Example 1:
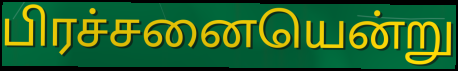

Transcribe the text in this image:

பிரச்சனையென்று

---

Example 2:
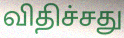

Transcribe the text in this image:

விதிச்சது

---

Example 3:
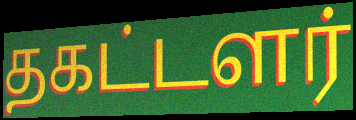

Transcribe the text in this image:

தகட்டளர்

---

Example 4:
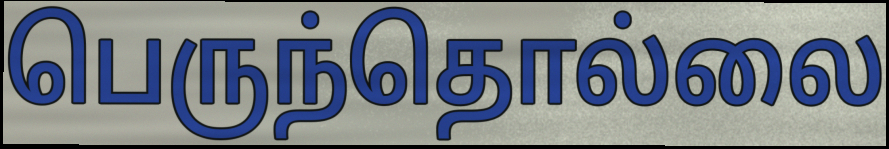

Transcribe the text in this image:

பெருந்தொல்லை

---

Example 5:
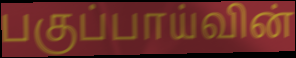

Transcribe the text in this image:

பகுப்பாய்வின்